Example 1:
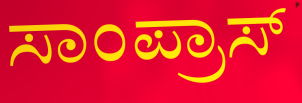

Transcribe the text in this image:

ಸಾಂಪ್ರಾಸ್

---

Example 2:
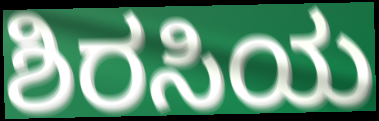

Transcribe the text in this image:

ಶಿರಸಿಯ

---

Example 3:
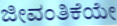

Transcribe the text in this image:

ಜೀವಂತಿಕೆಯೇ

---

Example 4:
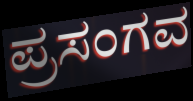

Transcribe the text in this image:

ಪ್ರಸಂಗವ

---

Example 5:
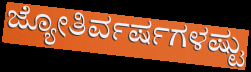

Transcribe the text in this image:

ಜ್ಯೋತಿರ್ವರ್ಷಗಳಷ್ಟು